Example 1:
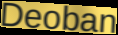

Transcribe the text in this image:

Deoban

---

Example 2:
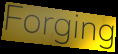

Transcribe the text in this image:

Forging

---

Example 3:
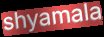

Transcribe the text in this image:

shyamala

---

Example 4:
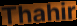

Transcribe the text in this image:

Thahir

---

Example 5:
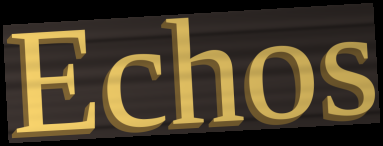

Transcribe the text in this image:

Echos